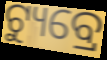
ଟ୍ୟୁବ୍ରେ